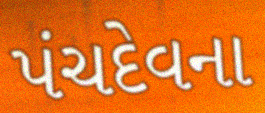
પંચદેવના